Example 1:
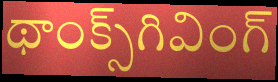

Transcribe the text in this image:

థాంక్స్‌గివింగ్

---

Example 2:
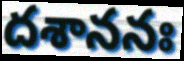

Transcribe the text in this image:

దశాననః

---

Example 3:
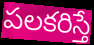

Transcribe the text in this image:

పలకరిస్తే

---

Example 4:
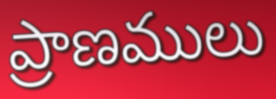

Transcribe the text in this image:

ప్రాణములు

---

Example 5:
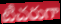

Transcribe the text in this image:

టీచరుగా